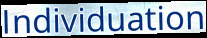
Individuation